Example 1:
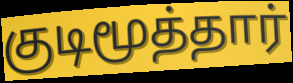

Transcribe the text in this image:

குடிமூத்தார்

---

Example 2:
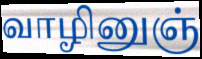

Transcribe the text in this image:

வாழினுஞ்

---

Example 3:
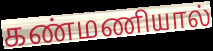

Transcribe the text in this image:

கண்மணியால்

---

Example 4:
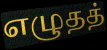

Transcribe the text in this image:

எழுதத்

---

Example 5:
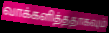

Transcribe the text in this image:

வாக்களித்ததாகவும்